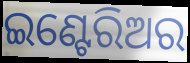
ଇଣ୍ଟେରିଅର